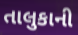
તાલુકાની